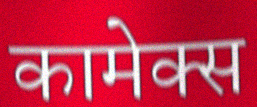
कामेक्स